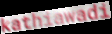
kathiawadi